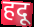
हदू